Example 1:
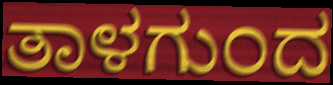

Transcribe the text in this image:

ತಾಳಗುಂದ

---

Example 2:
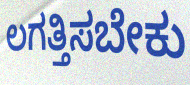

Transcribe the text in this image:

ಲಗತ್ತಿಸಬೇಕು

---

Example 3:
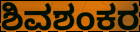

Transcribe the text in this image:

ಶಿವಶಂಕರ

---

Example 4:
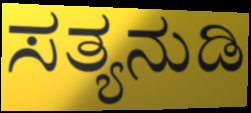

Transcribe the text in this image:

ಸತ್ಯನುಡಿ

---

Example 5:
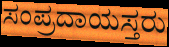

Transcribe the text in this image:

ಸಂಪ್ರದಾಯಸ್ತರು